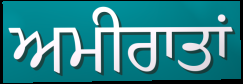
ਅਮੀਰਾਤਾਂ